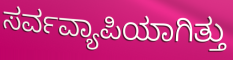
ಸರ್ವವ್ಯಾಪಿಯಾಗಿತ್ತು